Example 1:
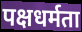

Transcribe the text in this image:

पक्षधर्मता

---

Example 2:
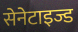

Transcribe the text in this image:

सेनेटाइज्ड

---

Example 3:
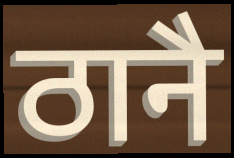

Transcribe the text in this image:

ठानै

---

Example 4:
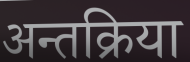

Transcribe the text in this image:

अन्तक्रिया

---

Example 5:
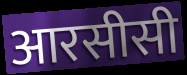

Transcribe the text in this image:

आरसीसी